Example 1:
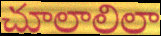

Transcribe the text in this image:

చూలాలిలా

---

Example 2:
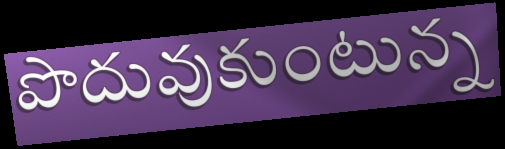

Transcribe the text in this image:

పొదువుకుంటున్న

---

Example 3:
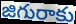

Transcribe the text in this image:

జిగురాకు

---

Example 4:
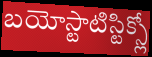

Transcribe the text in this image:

బయోస్టాటిస్టిక్స్లో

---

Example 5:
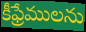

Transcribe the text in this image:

కీఫ్రేములను